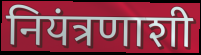
नियंत्रणाशी